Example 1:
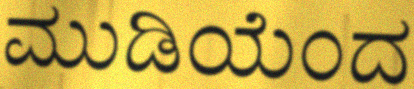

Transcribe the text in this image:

ಮುಡಿಯೆಂದ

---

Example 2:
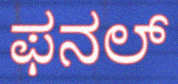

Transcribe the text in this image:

ಫನಲ್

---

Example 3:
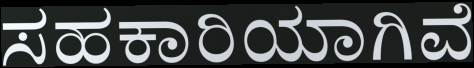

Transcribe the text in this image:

ಸಹಕಾರಿಯಾಗಿವೆ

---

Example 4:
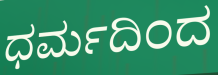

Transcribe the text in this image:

ಧರ್ಮದಿಂದ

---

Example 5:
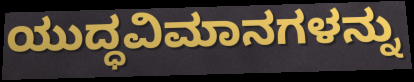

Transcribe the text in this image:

ಯುದ್ಧವಿಮಾನಗಳನ್ನು